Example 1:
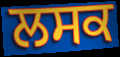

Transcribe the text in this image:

ਲਸਕ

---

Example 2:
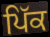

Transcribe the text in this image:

ਪਿੱਕ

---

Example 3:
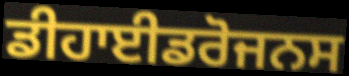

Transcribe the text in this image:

ਡੀਹਾਈਡਰੋਜਨਸ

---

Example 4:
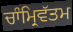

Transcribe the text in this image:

ਚਾੰਮ੍ਰਿਵੱਤਮ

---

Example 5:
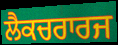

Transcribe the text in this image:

ਲੈਕਚਰਾਰਜ